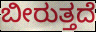
ಬೀರುತ್ತದೆ